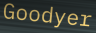
Goodyer